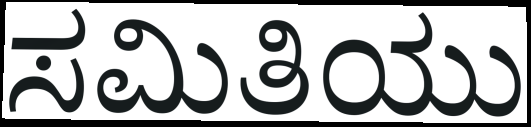
ಸಮಿತಿಯು